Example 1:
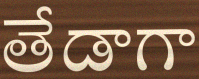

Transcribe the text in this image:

తేడాగా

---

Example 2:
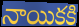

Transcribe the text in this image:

నాయికకి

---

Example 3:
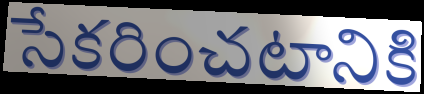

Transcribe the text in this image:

సేకరించటానికి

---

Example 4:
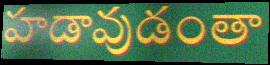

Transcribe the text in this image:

హడావుడంతా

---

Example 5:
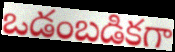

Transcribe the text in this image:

ఒడంబడికగా